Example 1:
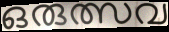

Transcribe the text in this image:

ഒരുത്സവ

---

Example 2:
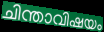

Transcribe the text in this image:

ചിന്താവിഷയം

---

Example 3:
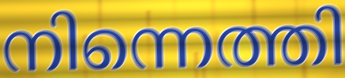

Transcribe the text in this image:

നിന്നെത്തി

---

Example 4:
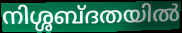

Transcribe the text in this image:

നിശ്ശബ്ദതയിൽ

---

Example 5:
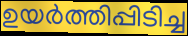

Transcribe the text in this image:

ഉയർത്തിപ്പിടിച്ച